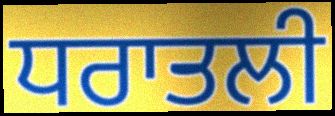
ਧਰਾਤਲੀ